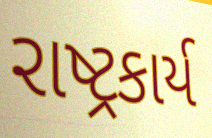
રાષ્ટ્રકાર્ય